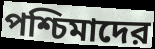
পশ্চিমাদের